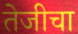
तेजीचा